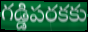
గడ్డిపరకకు